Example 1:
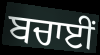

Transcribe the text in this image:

ਬਚਾਈਂ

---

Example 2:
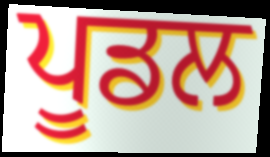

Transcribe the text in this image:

ਪੂਡਲ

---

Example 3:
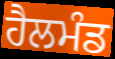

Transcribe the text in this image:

ਹੈਲਮੰਡ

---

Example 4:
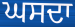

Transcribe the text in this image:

ਘਸਦਾ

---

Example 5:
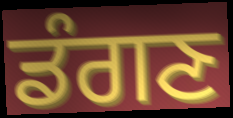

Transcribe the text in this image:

ਡੰਗਣ